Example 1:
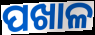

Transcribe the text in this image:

ପଖାଳ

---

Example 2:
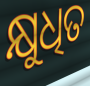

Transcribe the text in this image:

କ୍ଷୁଧିତ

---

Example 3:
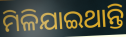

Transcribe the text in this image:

ମିଳିଯାଇଥାନ୍ତି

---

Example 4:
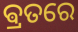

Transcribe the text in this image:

ଵ୍ରତରେ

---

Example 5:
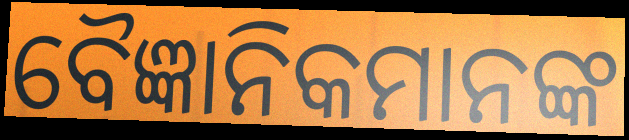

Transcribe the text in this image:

ବୈଜ୍ଞାନିକମାନଙ୍କ